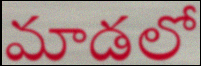
మాడలో